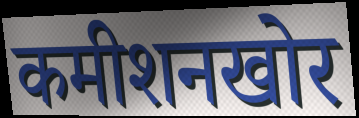
कमीशनखोर